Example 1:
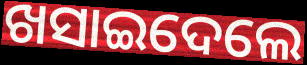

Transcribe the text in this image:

ଖସାଇଦେଲେ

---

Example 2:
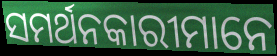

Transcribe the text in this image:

ସମର୍ଥନକାରୀମାନେ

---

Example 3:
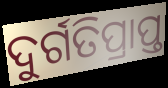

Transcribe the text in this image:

ଦୁର୍ଗତିପ୍ରାପ୍ତ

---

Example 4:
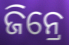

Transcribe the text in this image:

ଜିନ୍ରେ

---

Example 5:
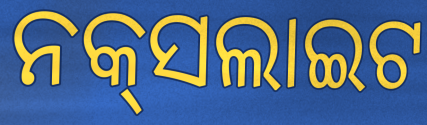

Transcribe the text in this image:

ନକ୍‌ସଲାଇଟ